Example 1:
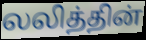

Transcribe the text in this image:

லலித்தின்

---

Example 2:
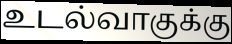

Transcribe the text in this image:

உடல்வாகுக்கு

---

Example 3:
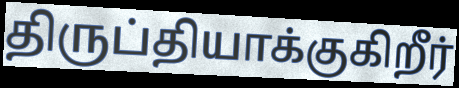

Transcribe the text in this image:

திருப்தியாக்குகிறீர்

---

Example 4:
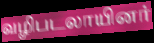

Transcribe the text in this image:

வழிபடலாயினர்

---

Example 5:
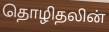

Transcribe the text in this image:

தொழிதலின்